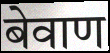
बेवाण